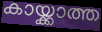
കായ്ക്കാത്ത